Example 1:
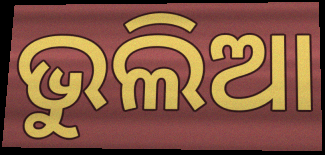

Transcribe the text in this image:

ଭୁଲିଆ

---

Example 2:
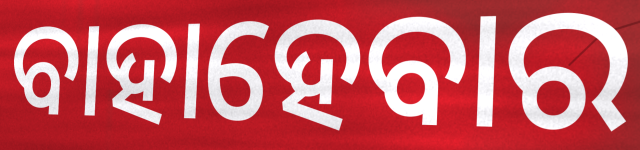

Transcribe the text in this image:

ବାହାହେବାର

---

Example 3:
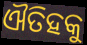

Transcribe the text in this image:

ଐତିହକୁ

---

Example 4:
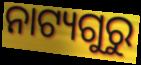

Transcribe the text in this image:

ନାଟ୍ୟଗୁରୁ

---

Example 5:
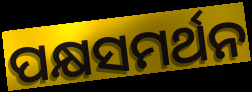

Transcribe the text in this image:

ପକ୍ଷସମର୍ଥନ